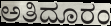
ಅತಿದೂರಂ